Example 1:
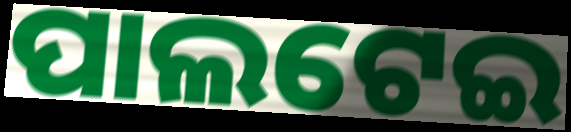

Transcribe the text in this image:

ପାଲଟେଇ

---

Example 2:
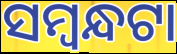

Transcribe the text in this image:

ସମ୍ବନ୍ଧଟା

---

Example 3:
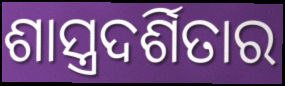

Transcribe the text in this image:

ଶାସ୍ତ୍ରଦର୍ଶିତାର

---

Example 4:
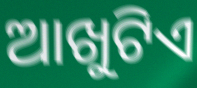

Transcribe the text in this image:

ଆଖୁଟିଏ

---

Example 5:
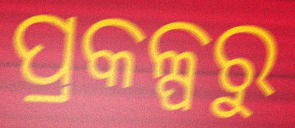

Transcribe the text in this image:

ପ୍ରକଳ୍ପରୁ